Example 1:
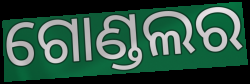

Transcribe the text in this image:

ଗୋଣ୍ଡଲର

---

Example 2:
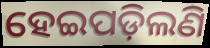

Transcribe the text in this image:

ହେଇପଡ଼ିଲଣି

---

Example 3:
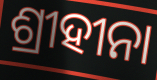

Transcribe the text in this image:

ଶ୍ରୀହୀନା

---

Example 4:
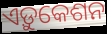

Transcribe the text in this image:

ଏଡ଼ୁକେଶନ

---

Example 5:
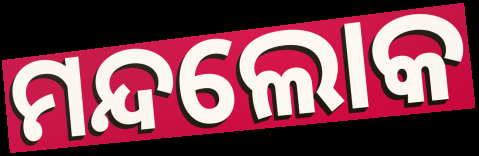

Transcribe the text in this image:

ମନ୍ଦଲୋକ